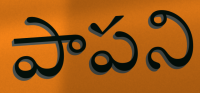
పాపని